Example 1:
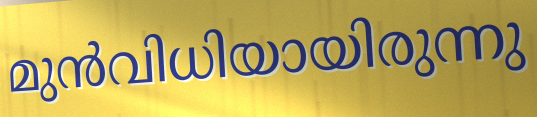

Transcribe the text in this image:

മുൻവിധിയായിരുന്നു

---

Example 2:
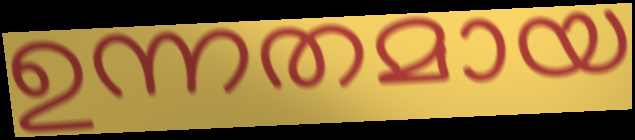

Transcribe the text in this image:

ഉന്നതമായ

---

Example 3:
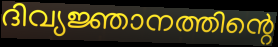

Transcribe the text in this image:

ദിവ്യജ്ഞാനത്തിന്റെ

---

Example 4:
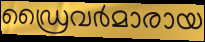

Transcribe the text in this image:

ഡ്രൈവർമാരായ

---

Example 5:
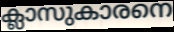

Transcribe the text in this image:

ക്ലാസുകാരനെ